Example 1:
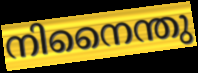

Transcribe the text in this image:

നിനൈന്തു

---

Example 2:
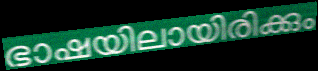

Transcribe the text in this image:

ഭാഷയിലായിരിക്കും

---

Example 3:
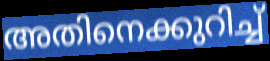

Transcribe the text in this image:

അതിനെക്കുറിച്ച്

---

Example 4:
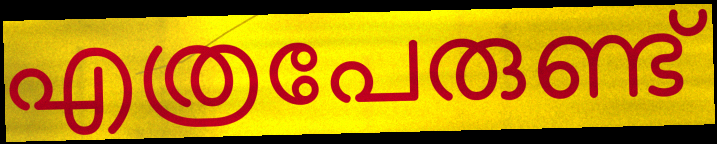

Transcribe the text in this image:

എത്രപേരുണ്ട്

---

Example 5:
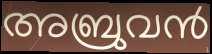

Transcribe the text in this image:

അബ്രുവൻ